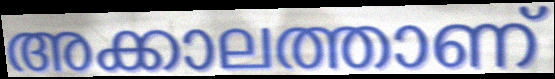
അക്കാലത്താണ്